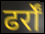
ढर्रों